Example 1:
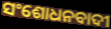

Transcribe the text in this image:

ସଂଶୋଧନବାଦୀ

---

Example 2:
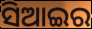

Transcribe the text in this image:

ସିଆଇର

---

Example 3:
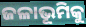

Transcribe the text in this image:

ଜଳାଭୂମିକୁ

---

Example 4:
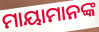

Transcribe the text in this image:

ମାୟାମାନଙ୍କ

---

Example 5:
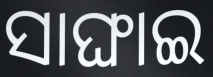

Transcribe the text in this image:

ସାଙ୍ଘାଇ